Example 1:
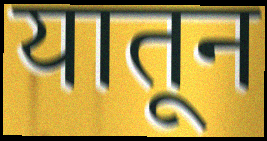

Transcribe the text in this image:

यातून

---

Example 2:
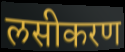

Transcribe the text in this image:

लसीकरण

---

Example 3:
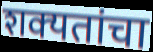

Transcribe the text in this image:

शक्यतांचा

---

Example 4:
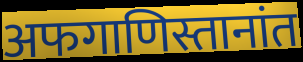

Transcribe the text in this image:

अफगाणिस्तानांत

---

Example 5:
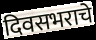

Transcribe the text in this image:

दिवसभराचे